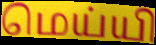
மெய்யி